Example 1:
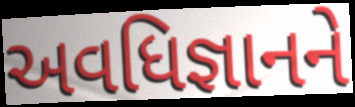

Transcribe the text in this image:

અવધિજ્ઞાનને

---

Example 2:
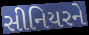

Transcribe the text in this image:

સીનિયરને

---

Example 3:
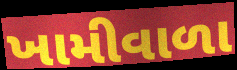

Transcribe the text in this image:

ખામીવાળા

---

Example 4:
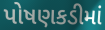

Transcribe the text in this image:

પોષણકડીમાં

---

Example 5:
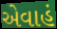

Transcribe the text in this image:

એવાહં